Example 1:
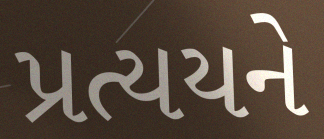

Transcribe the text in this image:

પ્રત્યયને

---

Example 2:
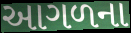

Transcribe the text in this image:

આગળના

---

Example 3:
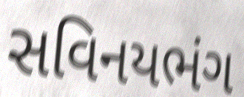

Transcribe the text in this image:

સવિનયભંગ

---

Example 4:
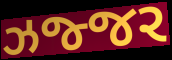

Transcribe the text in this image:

ઝજ્જર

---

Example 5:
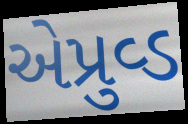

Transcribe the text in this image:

એપ્રુવ્ડ